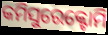
କମିସୁରେକ୍ଟୋମି